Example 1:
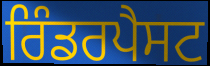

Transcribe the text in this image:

ਰਿੰਡਰਪੈਸਟ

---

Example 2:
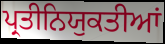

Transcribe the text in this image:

ਪ੍ਰਤੀਨਿਯੁਕਤੀਆਂ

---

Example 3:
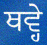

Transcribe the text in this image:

ਥਵ੍ਹੇ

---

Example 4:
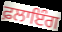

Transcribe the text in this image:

ਫ਼ਲਾਇੰਗ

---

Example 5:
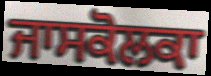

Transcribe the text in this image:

ਜਾਸਕੋਲਕਾ